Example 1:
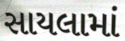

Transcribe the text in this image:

સાયલામાં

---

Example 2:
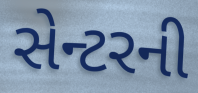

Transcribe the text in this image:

સેન્ટરની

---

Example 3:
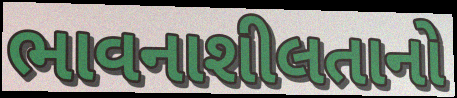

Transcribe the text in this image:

ભાવનાશીલતાનો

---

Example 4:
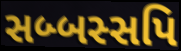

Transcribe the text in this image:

સબ્બસ્સપિ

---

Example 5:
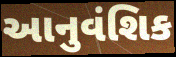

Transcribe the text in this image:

આનુવંશિક